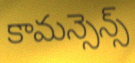
కామన్సెన్స్